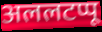
अललटप्पू